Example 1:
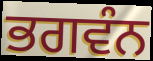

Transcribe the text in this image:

ਭਗਵੰਨ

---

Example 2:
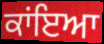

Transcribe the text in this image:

ਕਾਂਇਆ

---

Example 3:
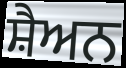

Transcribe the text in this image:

ਸ਼ੈਅਨ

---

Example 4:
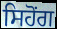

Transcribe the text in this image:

ਸਿਹੋਂਗ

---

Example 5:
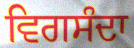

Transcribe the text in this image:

ਵਿਗਸੰਦਾ